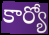
కార్యో